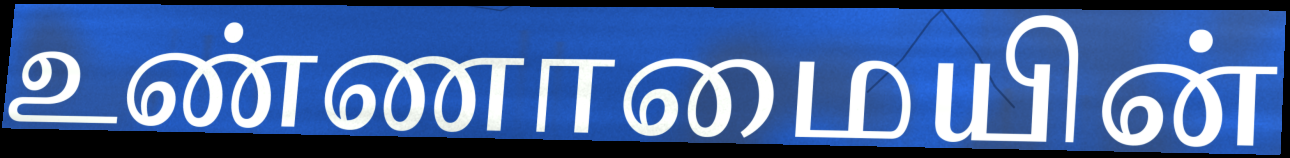
உண்ணாமையின்